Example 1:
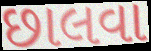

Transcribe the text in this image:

છાલવા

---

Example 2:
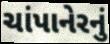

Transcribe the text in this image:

ચાંપાનેરનું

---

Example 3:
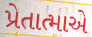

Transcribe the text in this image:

પ્રેતાત્માએ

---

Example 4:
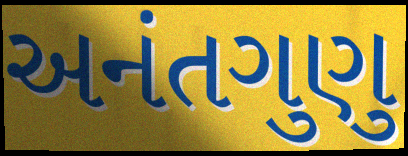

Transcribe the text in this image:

અનંતગુણુ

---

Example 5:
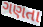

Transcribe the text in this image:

ગણતા